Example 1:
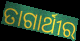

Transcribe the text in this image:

ତାଗାର୍ଥୀର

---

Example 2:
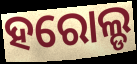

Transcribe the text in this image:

ହରୋଲ୍ଡ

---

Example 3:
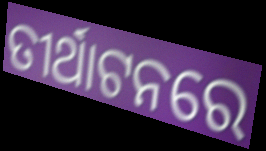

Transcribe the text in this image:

ତୀର୍ଥାଟନରେ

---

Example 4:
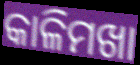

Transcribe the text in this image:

କାଳିମଖା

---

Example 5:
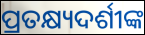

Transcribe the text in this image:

ପ୍ରତକ୍ଷ୍ୟଦର୍ଶୀଙ୍କ